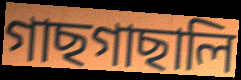
গাছগাছালি